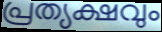
പ്രത്യക്ഷവും